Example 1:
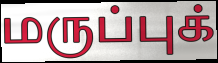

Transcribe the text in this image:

மருப்புக்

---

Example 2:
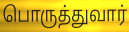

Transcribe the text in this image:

பொருத்துவார்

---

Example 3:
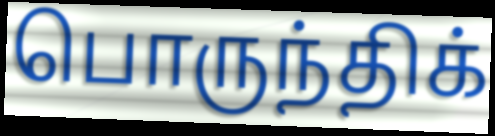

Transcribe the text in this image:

பொருந்திக்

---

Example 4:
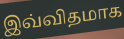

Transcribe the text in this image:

இவ்விதமாக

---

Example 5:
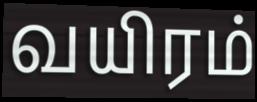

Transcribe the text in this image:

வயிரம்